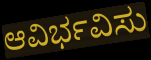
ಆವಿರ್ಭವಿಸು